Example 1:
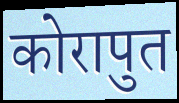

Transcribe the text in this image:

कोरापुत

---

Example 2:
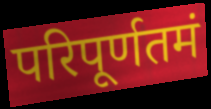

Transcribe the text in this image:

परिपूर्णतमं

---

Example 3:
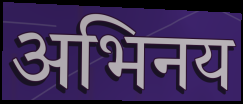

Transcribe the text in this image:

अभिनय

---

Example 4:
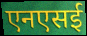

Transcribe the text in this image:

एनएसई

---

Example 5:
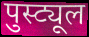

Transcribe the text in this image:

पुस्ट्यूल